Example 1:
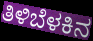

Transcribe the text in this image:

ತಿಳಿಬೆಳಕಿನ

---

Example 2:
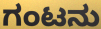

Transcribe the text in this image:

ಗಂಟನು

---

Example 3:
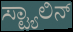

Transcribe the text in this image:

ಸ್ಟ್ಯಾಲಿನ್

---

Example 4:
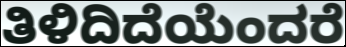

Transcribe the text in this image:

ತಿಳಿದಿದೆಯೆಂದರೆ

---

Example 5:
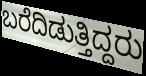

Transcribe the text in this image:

ಬರೆದಿಡುತ್ತಿದ್ದರು